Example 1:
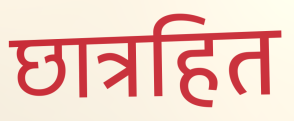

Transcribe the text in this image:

छात्रहित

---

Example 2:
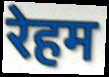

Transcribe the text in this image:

रेहम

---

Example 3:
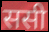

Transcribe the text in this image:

ससी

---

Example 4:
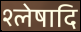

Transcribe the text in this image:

श्लेषादि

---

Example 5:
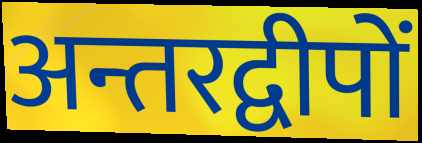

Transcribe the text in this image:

अन्तरद्वीपों